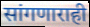
सांगणाराही